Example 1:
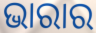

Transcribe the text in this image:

ଭାରାର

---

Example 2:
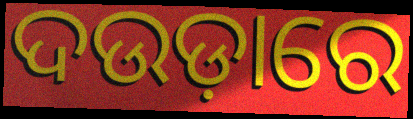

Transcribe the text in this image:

ଦଉଡ଼ାରେ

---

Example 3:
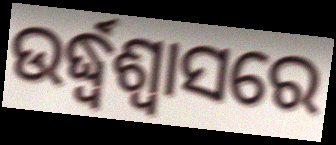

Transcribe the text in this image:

ଉର୍ଦ୍ଧ୍ଵଶ୍ୱାସରେ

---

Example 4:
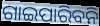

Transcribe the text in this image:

ଗାଇପାରିବନି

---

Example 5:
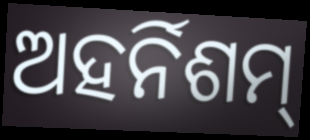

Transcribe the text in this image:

ଅହର୍ନିଶମ୍